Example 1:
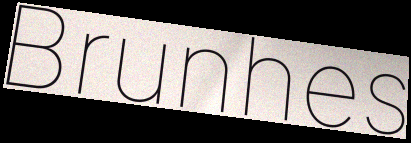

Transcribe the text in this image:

Brunhes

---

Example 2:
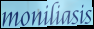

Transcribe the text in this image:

moniliasis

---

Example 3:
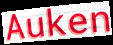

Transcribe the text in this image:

Auken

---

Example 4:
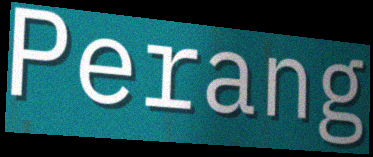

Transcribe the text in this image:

Perang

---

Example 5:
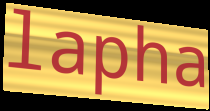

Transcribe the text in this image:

lapha